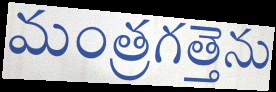
మంత్రగత్తెను